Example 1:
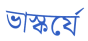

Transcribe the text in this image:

ভাস্কর্যে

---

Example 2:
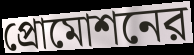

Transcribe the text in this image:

প্রোমোশনের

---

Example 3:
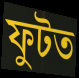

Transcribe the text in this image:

ফুটত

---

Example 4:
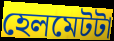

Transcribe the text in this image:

হেলমেটটা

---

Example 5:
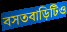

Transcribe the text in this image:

বসতবাড়িটিও